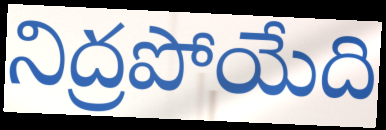
నిద్రపోయేది